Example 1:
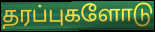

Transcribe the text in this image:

தரப்புகளோடு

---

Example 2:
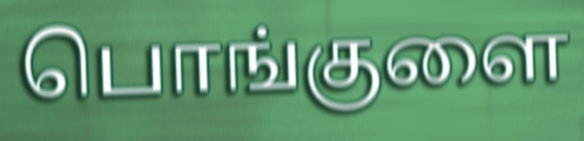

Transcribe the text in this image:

பொங்குளை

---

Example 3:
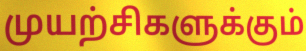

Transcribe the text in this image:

முயற்சிகளுக்கும்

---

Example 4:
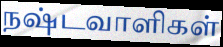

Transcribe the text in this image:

நஷ்டவாளிகள்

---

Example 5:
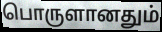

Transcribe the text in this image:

பொருளானதும்